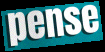
pense